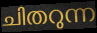
ചിതറുന്ന